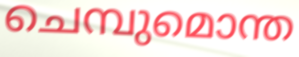
ചെമ്പുമൊന്ത